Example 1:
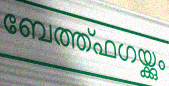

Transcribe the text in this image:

ബേത്ത്ഫഗയ്ക്കും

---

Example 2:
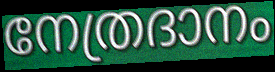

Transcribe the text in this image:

നേത്രദാനം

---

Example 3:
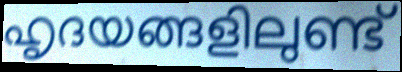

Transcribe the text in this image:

ഹൃദയങ്ങളിലുണ്ട്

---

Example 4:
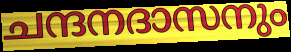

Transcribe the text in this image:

ചന്ദനദാസനും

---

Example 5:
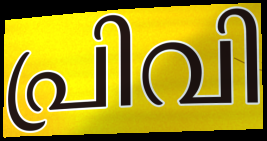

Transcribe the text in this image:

പ്രിവി